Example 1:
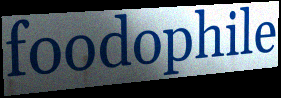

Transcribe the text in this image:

foodophile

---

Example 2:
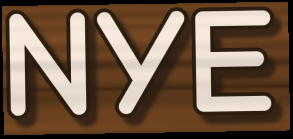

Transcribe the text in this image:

NYE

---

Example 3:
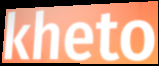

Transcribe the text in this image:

kheto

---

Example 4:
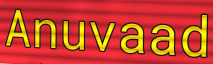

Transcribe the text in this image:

Anuvaad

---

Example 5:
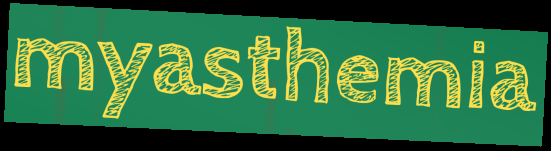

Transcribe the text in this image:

myasthemia